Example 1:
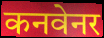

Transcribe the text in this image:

कनवेनर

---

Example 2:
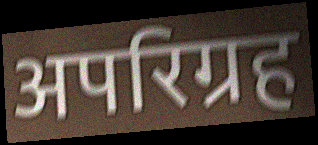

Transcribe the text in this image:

अपरिग्रह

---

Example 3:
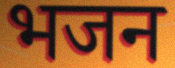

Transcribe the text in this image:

भजन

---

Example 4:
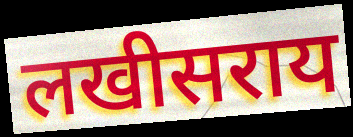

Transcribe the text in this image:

लखीसराय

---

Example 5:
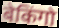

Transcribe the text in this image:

बेकिंगो